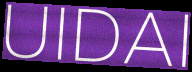
UIDAI